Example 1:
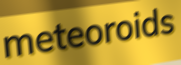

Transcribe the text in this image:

meteoroids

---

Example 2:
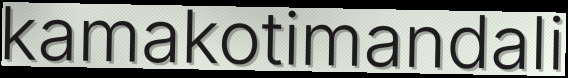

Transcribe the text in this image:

kamakotimandali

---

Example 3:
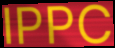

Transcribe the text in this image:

IPPC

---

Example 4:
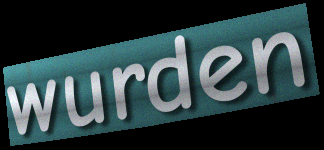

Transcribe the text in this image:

wurden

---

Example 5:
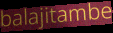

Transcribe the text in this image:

balajitambe